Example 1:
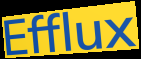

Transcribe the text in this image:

Efflux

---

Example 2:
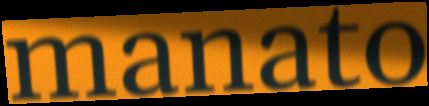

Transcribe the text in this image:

manato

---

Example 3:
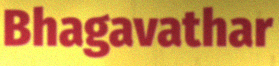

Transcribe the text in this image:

Bhagavathar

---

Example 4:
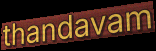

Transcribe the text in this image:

thandavam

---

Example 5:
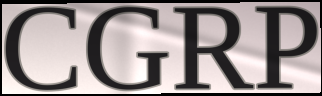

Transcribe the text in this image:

CGRP